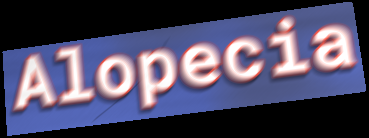
Alopecia